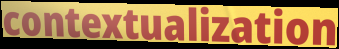
contextualization